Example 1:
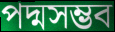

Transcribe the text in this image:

পদ্মসম্ভব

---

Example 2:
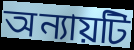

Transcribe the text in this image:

অন্যায়টি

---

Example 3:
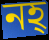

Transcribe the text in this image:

নহ্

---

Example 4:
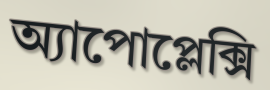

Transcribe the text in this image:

অ্যাপোপ্লেক্সি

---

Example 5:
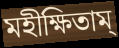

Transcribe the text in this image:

মহীক্ষিতাম্